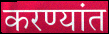
करण्यांत